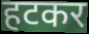
हटकर